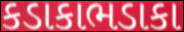
કડાકાભડાકા